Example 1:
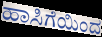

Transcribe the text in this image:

ಹಾಸಿಗೆಯಿಂದ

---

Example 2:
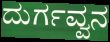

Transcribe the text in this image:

ದುರ್ಗವ್ವನ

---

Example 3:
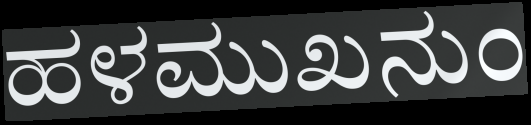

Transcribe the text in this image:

ಹಳಮುಖನುಂ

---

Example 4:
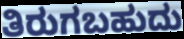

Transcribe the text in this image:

ತಿರುಗಬಹುದು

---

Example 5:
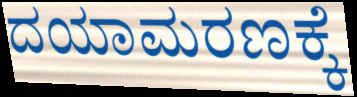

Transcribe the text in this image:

ದಯಾಮರಣಕ್ಕೆ